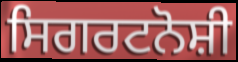
ਸਿਗਰਟਨੋਸ਼ੀ